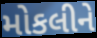
મોકલીને